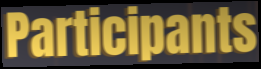
Participants